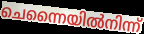
ചെന്നൈയിൽനിന്ന്